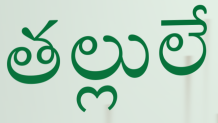
తల్లులే